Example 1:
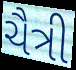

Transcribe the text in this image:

ચૈત્રી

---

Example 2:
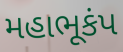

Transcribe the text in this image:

મહાભૂકંપ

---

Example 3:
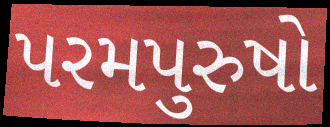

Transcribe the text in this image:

પરમપુરુષો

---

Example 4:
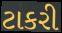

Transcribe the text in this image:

ટાકરી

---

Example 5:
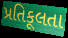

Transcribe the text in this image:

પ્રતિકૂલતા